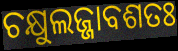
ଚକ୍ଷୁଲଜ୍ଜାବଶତଃ